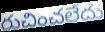
రుచించలేదు